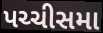
પચ્ચીસમા